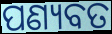
ପଣ୍ୟବତ